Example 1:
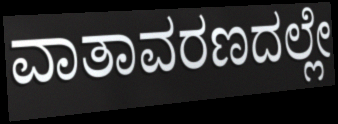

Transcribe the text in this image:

ವಾತಾವರಣದಲ್ಲೇ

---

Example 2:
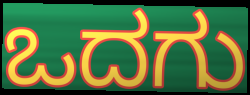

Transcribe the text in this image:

ಒದಗು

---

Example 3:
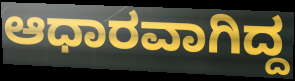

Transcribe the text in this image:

ಆಧಾರವಾಗಿದ್ದ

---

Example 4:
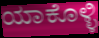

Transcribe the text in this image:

ಯಾಕೊಳ್ಳಿ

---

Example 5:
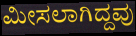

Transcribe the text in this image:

ಮೀಸಲಾಗಿದ್ದವು